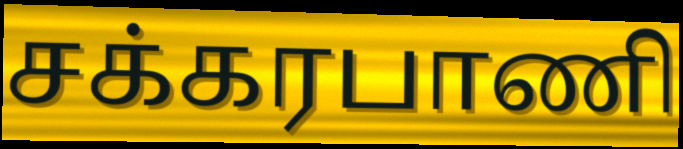
சக்கரபாணி